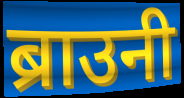
ब्राउनी